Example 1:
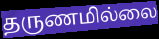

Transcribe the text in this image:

தருணமில்லை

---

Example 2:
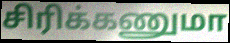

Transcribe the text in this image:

சிரிக்கணுமா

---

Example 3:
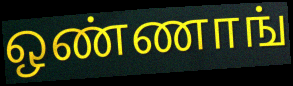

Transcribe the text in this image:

ஒண்ணாங்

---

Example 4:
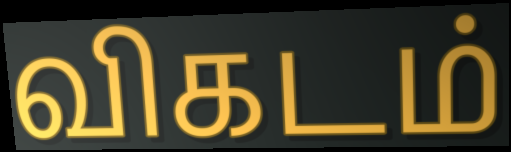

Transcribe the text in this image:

விகடம்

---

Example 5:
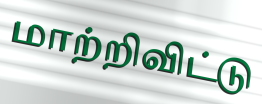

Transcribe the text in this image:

மாற்றிவிட்டு